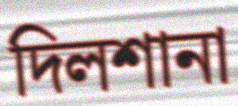
দিলশানা